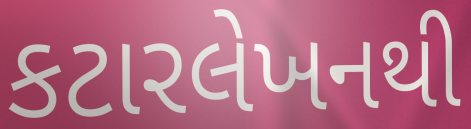
કટારલેખનથી